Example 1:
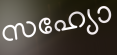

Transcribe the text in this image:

സഹ്യോ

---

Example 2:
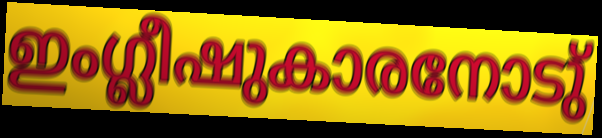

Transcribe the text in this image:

ഇംഗ്ലീഷുകാരനോടു്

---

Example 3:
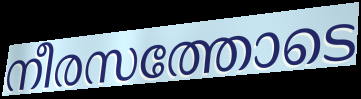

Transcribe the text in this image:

നീരസത്തോടെ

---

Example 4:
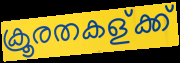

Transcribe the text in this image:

ക്രൂരതകള്ക്ക്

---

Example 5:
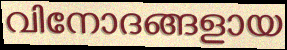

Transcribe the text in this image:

വിനോദങ്ങളായ